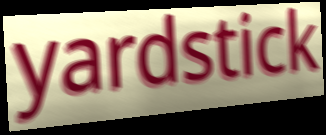
yardstick